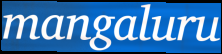
mangaluru